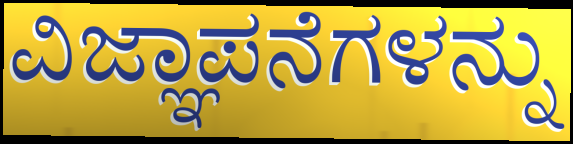
ವಿಜ್ಞಾಪನೆಗಳನ್ನು